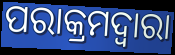
ପରାକ୍ରମଦ୍ୱାରା